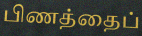
பிணத்தைப்